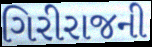
ગિરીરાજની